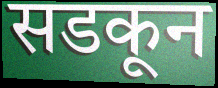
सडकून